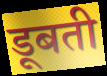
डूबती